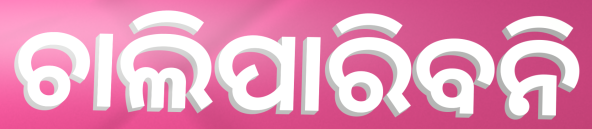
ଚାଲିପାରିବନି